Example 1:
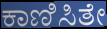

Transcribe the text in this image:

ಕಾಣಿಸಿತೇ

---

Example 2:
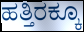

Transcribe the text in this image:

ಹತ್ತಿರಕ್ಕೂ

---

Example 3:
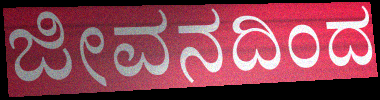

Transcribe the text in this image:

ಜೀವನದಿಂದ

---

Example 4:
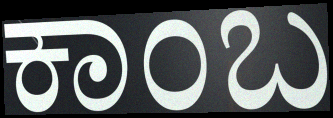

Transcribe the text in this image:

ಕಾಂಬ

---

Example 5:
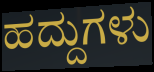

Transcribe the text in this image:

ಹದ್ದುಗಳು